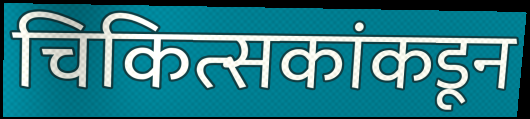
चिकित्सकांकडून